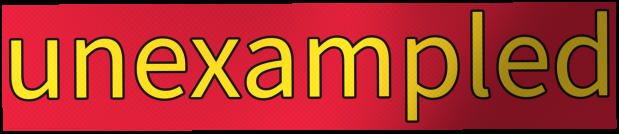
unexampled